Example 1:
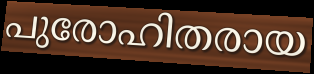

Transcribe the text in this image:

പുരോഹിതരായ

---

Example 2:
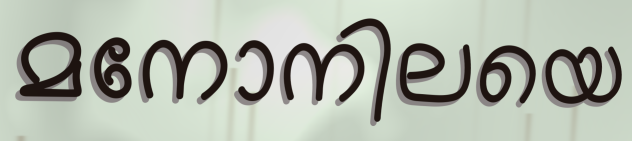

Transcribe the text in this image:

മനോനിലയെ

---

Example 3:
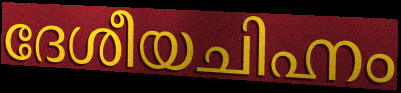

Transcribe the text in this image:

ദേശീയചിഹ്നം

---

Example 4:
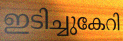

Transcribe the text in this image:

ഇടിച്ചുകേറി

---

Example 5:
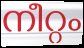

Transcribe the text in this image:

നീറ്റം